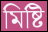
মিষ্টি